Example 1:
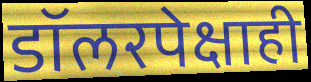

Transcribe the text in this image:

डॉलरपेक्षाही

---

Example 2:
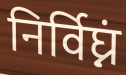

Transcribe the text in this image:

निर्विघ्नं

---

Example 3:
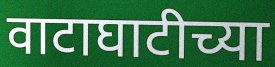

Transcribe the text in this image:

वाटाघाटीच्या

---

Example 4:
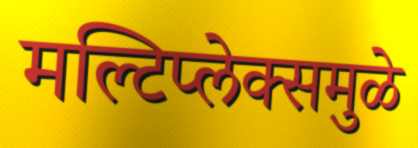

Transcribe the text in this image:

मल्टिप्लेक्समुळे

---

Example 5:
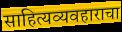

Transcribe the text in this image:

साहित्यव्यवहाराचा